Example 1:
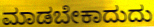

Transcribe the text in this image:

ಮಾಡಬೇಕಾದುದು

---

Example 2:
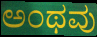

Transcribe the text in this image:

ಅಂಥವು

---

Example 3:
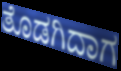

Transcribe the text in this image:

ತೊಡಗಿದಾಗ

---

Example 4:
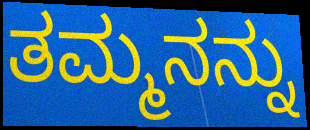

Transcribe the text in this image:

ತಮ್ಮನನ್ನು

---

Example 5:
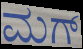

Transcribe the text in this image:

ಮಗ್